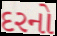
દરનો